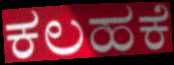
ಕಲಹಕೆ